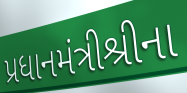
પ્રધાનમંત્રીશ્રીના